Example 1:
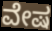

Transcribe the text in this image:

ವೇಷ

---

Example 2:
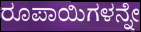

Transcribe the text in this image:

ರೂಪಾಯಿಗಳನ್ನೇ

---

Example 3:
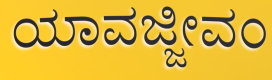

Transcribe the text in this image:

ಯಾವಜ್ಜೀವಂ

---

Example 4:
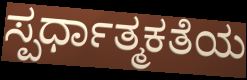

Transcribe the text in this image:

ಸ್ಪರ್ಧಾತ್ಮಕತೆಯ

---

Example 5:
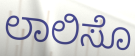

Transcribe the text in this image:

ಲಾಲಿಸೊ